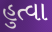
હુત્વા